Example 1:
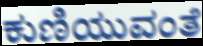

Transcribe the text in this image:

ಕುಣಿಯುವಂತೆ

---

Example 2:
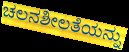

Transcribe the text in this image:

ಚಲನಶೀಲತೆಯನ್ನು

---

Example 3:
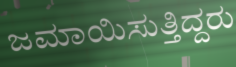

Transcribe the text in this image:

ಜಮಾಯಿಸುತ್ತಿದ್ದರು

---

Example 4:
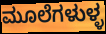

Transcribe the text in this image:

ಮೂಲೆಗಳುಳ್ಳ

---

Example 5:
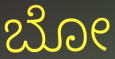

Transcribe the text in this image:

ಬೋ